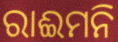
ରାଈମନି